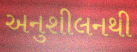
અનુશીલનથી